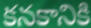
కనకానికి